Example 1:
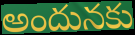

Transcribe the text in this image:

అందునకు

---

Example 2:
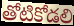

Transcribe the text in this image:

తోటికోడలి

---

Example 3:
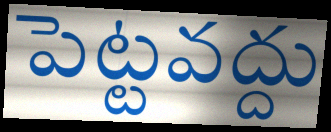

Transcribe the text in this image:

పెట్టవద్దు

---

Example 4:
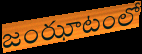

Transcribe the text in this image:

జంఝాటంలో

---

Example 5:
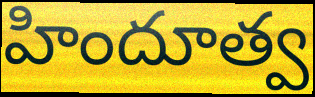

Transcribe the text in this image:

హిందూత్వ